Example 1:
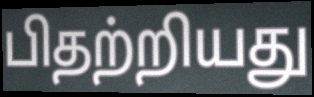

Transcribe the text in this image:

பிதற்றியது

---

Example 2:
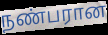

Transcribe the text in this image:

நண்பரான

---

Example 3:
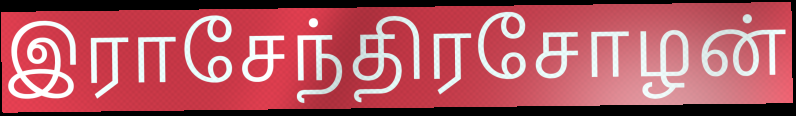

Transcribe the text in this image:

இராசேந்திரசோழன்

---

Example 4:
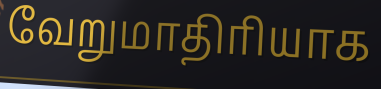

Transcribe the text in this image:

வேறுமாதிரியாக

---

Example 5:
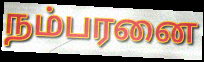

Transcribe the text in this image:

நம்பரனை